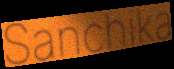
Sanchika